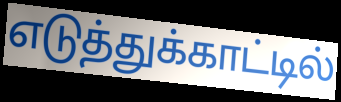
எடுத்துக்காட்டில்